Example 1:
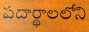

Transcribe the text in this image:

పదార్థాలలోని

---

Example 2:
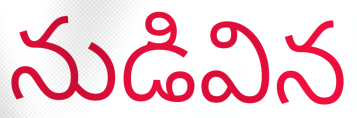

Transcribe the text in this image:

నుడివిన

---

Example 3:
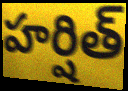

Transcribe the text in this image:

హర్షిత్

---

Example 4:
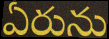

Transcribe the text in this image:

ఏరును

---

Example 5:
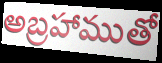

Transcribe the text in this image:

అబ్రహాముతో